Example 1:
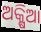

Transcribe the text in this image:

ଅକ୍ଷିଆ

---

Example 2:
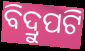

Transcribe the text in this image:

ବିଦ୍ରୁପଟି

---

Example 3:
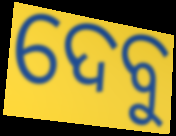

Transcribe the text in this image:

ଦେବୁ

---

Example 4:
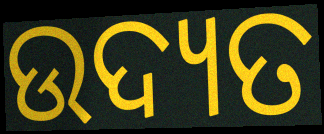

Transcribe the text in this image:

ଉଦ୍ୟତ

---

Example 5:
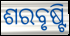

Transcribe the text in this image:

ଶରବୃଷ୍ଟି